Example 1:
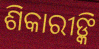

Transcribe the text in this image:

ଶିକାରୀଙ୍କି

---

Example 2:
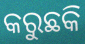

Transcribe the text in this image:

କରୁଛକି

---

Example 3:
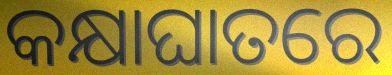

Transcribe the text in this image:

କକ୍ଷାଘାତରେ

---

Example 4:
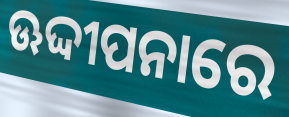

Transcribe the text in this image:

ଊଦ୍ଦୀପନାରେ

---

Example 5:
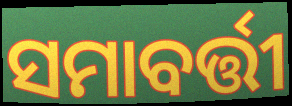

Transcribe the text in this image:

ସମାବର୍ତ୍ତୀ